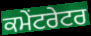
ਕਮੇਂਟਰੇਟਰ